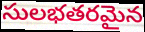
సులభతరమైన